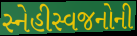
સ્નેહીસ્વજનોની